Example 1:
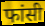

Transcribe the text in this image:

फांसी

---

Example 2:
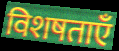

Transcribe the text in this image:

विशषताएँ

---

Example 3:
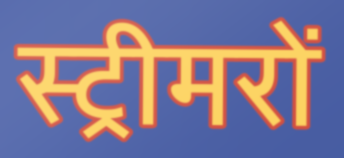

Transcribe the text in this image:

स्ट्रीमरों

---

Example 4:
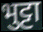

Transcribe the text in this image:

भुट्टा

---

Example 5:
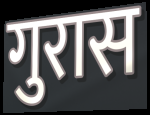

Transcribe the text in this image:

गुरास